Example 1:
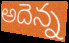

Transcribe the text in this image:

అదెన్న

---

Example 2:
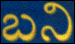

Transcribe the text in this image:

బని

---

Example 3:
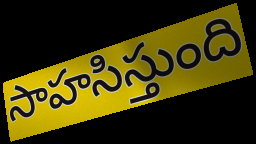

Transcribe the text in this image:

సాహసిస్తుంది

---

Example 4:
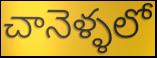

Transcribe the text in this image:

చానెళ్ళలో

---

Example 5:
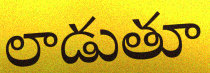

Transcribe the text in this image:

లాడుతూ